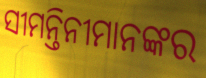
ସୀମନ୍ତିନୀମାନଙ୍କର